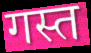
गस्त